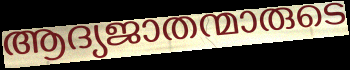
ആദ്യജാതന്മാരുടെ